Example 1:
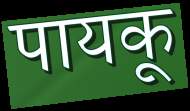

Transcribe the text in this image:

पायकू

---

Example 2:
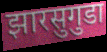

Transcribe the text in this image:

झारसुगुडा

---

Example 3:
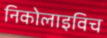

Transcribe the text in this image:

निकोलाइविच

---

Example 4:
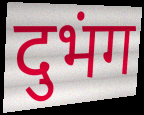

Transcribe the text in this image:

दुभंग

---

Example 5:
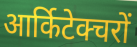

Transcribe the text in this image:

आर्किटेक्चरों